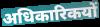
अधिकारिकयों